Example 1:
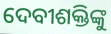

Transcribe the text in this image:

ଦେବୀଶକ୍ତିଙ୍କୁ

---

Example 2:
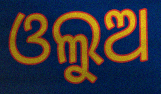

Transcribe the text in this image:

ଓଲୁଅ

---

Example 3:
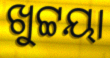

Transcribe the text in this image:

ଖୁଟ୍ଟୟା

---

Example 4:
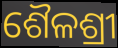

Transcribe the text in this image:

ଶୈଳଶ୍ରୀ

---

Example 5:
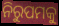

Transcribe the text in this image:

ନିରୁପମକୁ